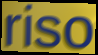
riso